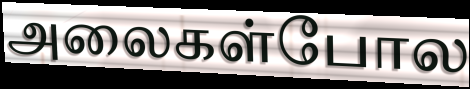
அலைகள்போல